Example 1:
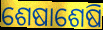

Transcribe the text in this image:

ଶେଷାଶେଷି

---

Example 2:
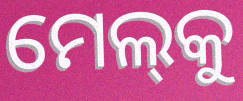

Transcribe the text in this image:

ମେଲ୍‌କୁ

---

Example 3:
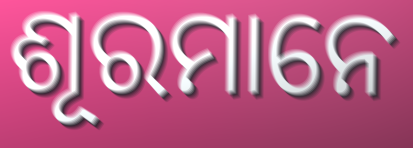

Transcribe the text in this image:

ଶୂରମାନେ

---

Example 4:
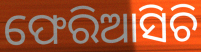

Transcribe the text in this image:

ଫେରିଆସିଚି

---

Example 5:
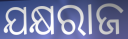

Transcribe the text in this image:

ଯକ୍ଷରାଜ